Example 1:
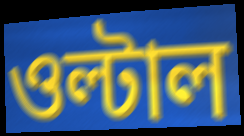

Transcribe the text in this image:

ওল্টাল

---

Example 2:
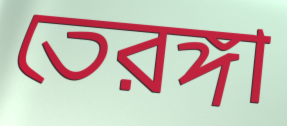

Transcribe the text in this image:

তেরঙ্গা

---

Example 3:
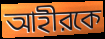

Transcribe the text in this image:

আহীরকে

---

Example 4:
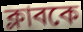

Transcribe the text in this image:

ক্লাবকে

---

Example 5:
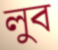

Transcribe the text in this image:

লুব